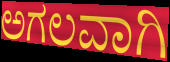
ಅಗಲವಾಗಿ